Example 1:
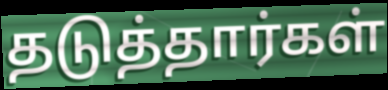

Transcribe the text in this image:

தடுத்தார்கள்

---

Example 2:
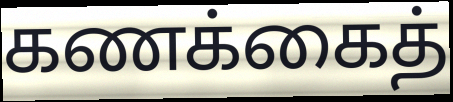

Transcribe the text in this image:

கணக்கைத்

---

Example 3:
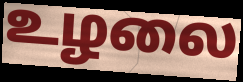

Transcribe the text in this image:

உழலை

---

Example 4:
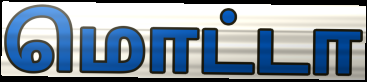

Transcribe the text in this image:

மொட்டா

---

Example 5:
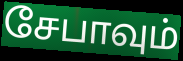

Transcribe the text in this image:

சேபாவும்